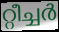
റ്റീച്ചർ